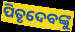
ପିତୃଦେବଙ୍କୁ